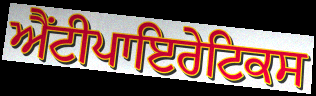
ਐਂਟੀਪਾਇਰੇਟਿਕਸ